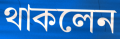
থাকলেন